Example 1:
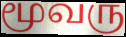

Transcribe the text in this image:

மூவரு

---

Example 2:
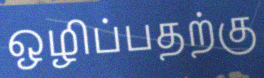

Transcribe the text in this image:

ஒழிப்பதற்கு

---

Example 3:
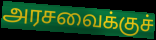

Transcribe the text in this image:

அரசவைக்குச்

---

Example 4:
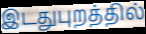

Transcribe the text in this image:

இடதுபுறத்தில்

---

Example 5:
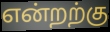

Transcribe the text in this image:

என்றற்கு